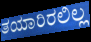
ತಯಾರಿರಲಿಲ್ಲ